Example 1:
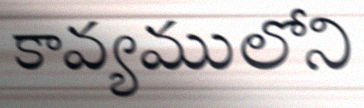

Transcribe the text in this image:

కావ్యములోని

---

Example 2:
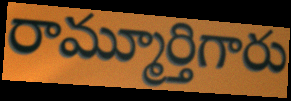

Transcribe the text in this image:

రామ్మూర్తిగారు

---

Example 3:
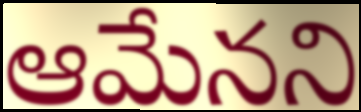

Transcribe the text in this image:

ఆమేనని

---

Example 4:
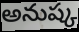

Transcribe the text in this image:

అనుష్క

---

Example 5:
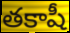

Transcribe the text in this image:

తకాషీ